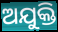
ଅଯୁକ୍ତି